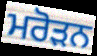
ਮਰੋੜਨ